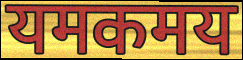
यमकमय